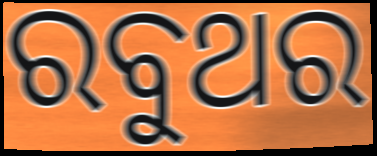
ରବୁଥର